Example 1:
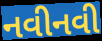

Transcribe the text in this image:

નવીનવી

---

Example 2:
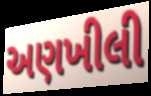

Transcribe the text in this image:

અણખીલી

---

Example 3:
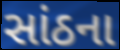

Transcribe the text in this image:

સાંઠના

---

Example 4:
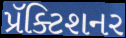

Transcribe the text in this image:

પ્રૅક્ટિશનર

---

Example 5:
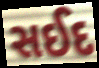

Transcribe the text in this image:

સઈદ